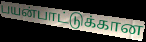
பயன்பாட்டுக்கான